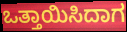
ಒತ್ತಾಯಿಸಿದಾಗ